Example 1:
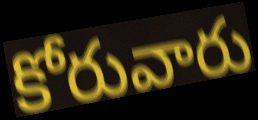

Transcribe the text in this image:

కోరువారు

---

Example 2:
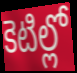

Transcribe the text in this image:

కెటిల్లో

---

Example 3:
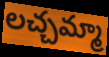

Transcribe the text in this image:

లచ్చమ్మా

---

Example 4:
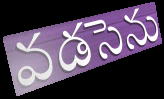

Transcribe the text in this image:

వడసెను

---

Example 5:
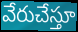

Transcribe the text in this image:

వేరుచేస్తూ